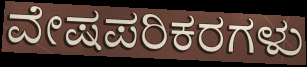
ವೇಷಪರಿಕರಗಳು